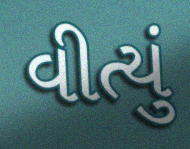
વીત્યું